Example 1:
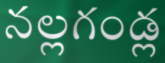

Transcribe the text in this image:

నల్లగండ్ల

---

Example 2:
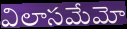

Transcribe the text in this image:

విలాసమేమో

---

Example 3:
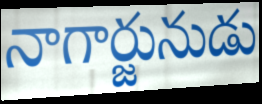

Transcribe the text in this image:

నాగార్జునుడు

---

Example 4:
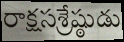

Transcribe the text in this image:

రాక్షసశ్రేష్ఠుడు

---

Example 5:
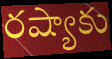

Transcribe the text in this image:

రష్యాకు